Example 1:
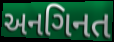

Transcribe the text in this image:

અનગિનત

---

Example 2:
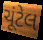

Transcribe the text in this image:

ચૂંટેલ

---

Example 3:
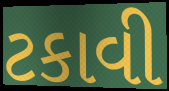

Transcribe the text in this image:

ટકાવી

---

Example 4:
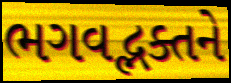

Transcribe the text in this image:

ભગવદ્ભક્તને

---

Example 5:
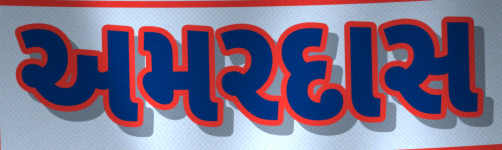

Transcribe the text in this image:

અમરદાસ